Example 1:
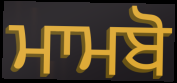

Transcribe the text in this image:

ਮਾਮਬੋ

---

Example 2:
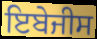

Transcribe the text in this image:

ਇਬੇਜੀਸ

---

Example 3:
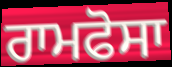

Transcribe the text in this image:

ਰਾਮਫੋਸਾ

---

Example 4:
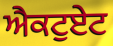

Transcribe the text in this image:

ਐਕਟੁਏਟ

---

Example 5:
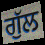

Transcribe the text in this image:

ਗੁੱਲ